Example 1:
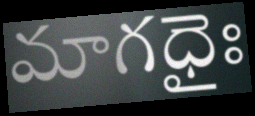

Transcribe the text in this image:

మాగధైః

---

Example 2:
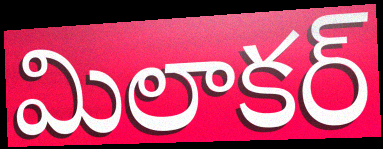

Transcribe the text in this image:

మిలాకర్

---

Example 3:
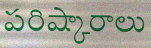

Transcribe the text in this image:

పరిష్కారాలు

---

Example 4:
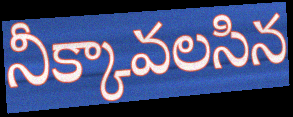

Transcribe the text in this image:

నీక్కావలసిన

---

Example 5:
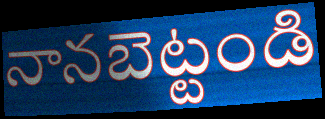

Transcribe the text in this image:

నానబెట్టండి